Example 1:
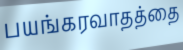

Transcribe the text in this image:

பயங்கரவாதத்தை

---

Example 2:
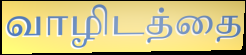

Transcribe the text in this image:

வாழிடத்தை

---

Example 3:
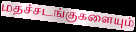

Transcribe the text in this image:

மதச்சடங்குகளையும்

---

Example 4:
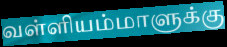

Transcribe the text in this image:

வள்ளியம்மாளுக்கு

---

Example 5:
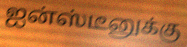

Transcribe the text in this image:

ஐன்ஸ்டீனுக்கு